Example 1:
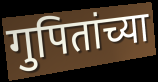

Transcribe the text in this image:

गुपितांच्या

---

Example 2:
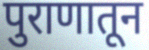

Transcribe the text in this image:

पुराणातून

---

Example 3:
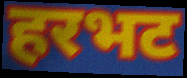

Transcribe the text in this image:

हरभट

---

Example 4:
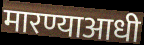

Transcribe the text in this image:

मारण्याआधी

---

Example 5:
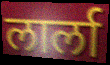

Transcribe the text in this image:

लार्ला